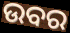
ଉବର